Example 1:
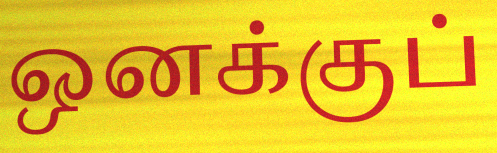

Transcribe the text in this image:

ஒனக்குப்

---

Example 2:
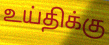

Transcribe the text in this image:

உய்திக்கு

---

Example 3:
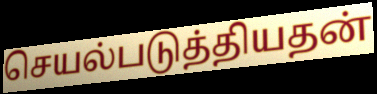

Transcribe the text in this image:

செயல்படுத்தியதன்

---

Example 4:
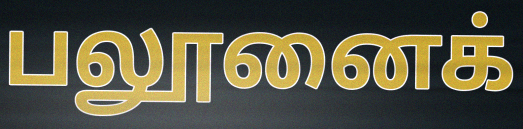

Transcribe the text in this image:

பலூனைக்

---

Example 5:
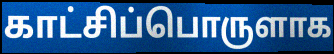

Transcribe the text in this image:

காட்சிப்பொருளாக